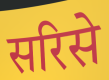
सरिसे